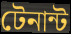
টেনান্ট